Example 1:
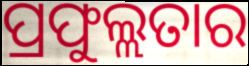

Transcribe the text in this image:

ପ୍ରଫୁଲ୍ଲତାର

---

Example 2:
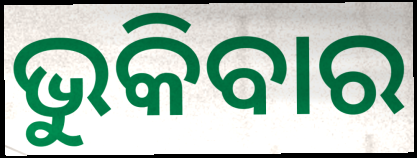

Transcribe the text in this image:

ଭୁକିବାର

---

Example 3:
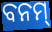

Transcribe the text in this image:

ବନମ୍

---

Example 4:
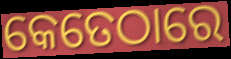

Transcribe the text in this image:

କେତେଠାରେ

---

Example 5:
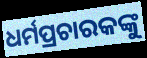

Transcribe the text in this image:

ଧର୍ମପ୍ରଚାରକଙ୍କୁ